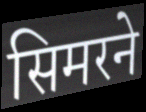
सिमरने